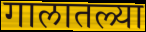
गालातल्या